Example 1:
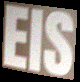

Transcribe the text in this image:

EIS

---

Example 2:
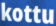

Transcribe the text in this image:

kottu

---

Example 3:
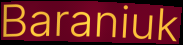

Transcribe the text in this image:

Baraniuk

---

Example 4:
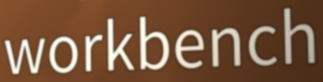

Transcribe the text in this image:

workbench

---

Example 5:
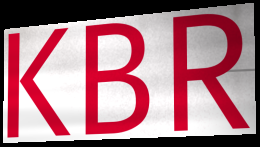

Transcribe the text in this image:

KBR